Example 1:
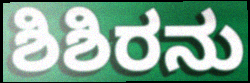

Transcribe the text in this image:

ಶಿಶಿರನು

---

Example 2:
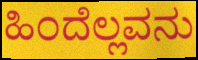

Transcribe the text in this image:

ಹಿಂದೆಲ್ಲವನು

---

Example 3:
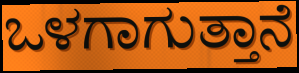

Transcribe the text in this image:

ಒಳಗಾಗುತ್ತಾನೆ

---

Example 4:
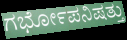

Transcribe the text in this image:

ಗರ್ಭೋಪನಿಷತ್ತು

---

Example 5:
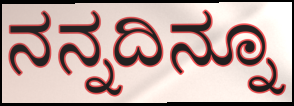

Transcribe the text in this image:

ನನ್ನದಿನ್ನೂ